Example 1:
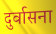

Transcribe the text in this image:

दुर्वासना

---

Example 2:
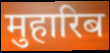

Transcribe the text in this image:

मुहारिब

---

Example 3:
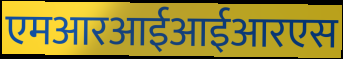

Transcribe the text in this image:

एमआरआईआईआरएस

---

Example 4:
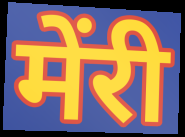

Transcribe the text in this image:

मेंरी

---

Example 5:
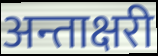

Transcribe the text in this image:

अन्ताक्षरी